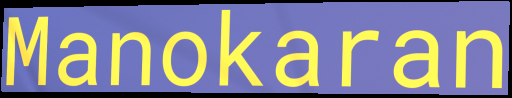
Manokaran